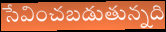
సేవించబడుతున్నది